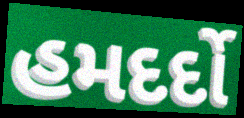
હમદર્દો